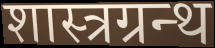
शास्त्रग्रन्थ